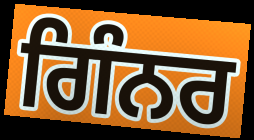
ਗਿੰਨਰ